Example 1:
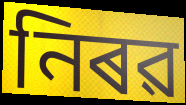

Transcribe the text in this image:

নিৰৱ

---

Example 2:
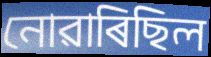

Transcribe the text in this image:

নোৱাৰিছিল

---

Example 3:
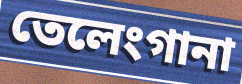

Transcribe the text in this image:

তেলেংগানা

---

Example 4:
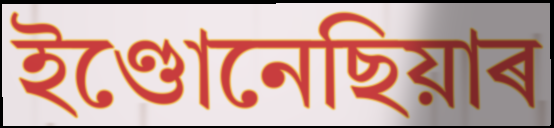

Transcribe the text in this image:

ইণ্ডোনেছিয়াৰ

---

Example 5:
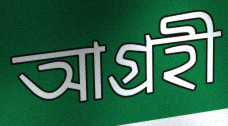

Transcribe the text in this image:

আগ্ৰহী